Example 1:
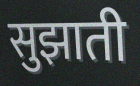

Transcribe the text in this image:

सुझाती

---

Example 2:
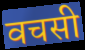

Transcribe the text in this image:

वचसी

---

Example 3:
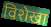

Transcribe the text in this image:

विशेखा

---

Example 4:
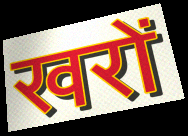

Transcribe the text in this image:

खरों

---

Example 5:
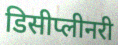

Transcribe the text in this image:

डिसीप्लीनरी